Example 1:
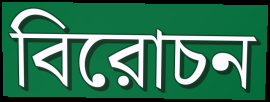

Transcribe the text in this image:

বিরোচন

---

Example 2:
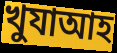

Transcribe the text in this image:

খুযাআহ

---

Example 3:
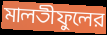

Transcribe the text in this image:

মালতীফুলের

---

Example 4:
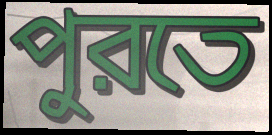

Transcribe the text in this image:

পুরতে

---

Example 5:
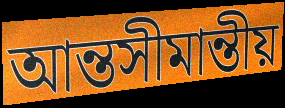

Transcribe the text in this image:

আন্তসীমান্তীয়